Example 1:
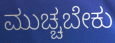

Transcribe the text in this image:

ಮುಚ್ಚಬೇಕು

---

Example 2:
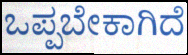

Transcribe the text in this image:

ಒಪ್ಪಬೇಕಾಗಿದೆ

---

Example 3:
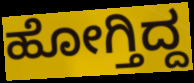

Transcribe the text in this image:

ಹೋಗ್ತಿದ್ದ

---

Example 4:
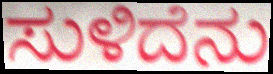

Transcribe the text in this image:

ಸುಳಿದೆನು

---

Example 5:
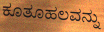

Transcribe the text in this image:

ಕೂತೂಹಲವನ್ನು